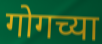
गोगच्या